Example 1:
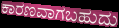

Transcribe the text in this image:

ಕಾರಣವಾಗಬಹುದು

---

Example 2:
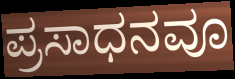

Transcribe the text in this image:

ಪ್ರಸಾಧನವೂ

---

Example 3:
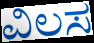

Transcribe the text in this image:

ವಿಲಸ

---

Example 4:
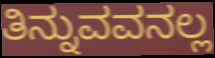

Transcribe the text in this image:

ತಿನ್ನುವವನಲ್ಲ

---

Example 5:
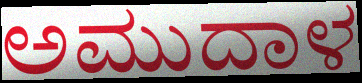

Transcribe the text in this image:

ಅಮುದಾಳ